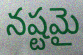
నష్టమై